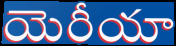
యెరీయా